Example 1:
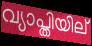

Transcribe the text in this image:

വ്യാപ്തിയില്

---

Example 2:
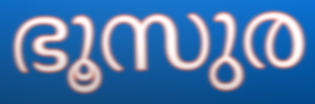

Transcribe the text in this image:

ഭൂസുര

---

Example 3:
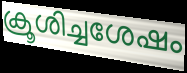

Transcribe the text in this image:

ക്രൂശിച്ചശേഷം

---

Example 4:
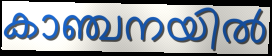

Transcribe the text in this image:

കാഞ്ചനയിൽ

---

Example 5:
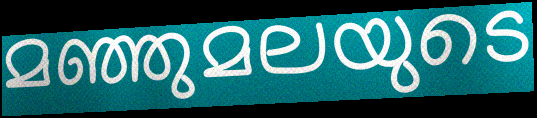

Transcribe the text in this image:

മഞ്ഞുമലയുടെ